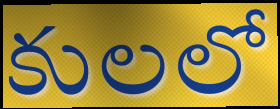
కులలో